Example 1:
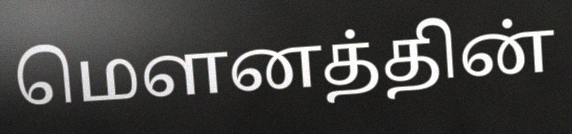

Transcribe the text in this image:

மௌனத்தின்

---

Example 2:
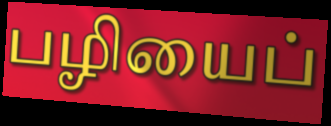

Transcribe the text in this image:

பழியைப்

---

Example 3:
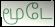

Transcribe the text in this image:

மூடே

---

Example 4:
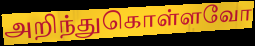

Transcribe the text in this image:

அறிந்துகொள்ளவோ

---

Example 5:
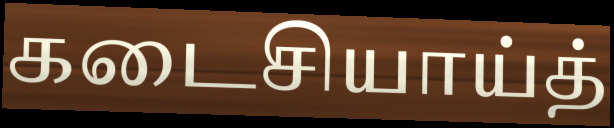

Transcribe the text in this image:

கடைசியாய்த்